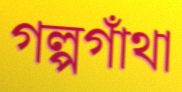
গল্পগাঁথা